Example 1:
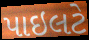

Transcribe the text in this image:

પાઇલટે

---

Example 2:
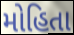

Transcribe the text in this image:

મોહિતા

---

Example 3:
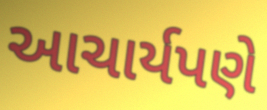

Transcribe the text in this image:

આચાર્યપણે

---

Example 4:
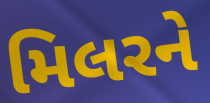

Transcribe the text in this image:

મિલરને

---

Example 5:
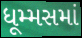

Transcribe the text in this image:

ધૂમ્મસમાં